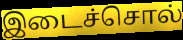
இடைச்சொல்